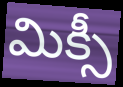
మిక్సీ